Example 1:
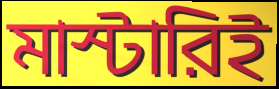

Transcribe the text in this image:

মাস্টারিই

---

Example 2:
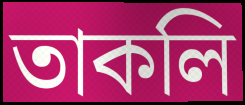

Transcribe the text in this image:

তাকলি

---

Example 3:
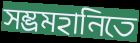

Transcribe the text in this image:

সম্ভ্রমহানিতে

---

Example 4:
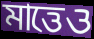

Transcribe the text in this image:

মাত্তেও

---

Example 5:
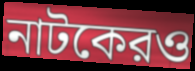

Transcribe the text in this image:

নাটকেরও